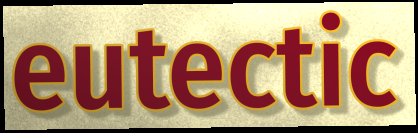
eutectic